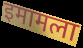
इमामला